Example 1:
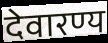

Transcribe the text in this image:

देवारण्य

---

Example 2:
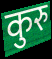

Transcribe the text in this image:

कुरु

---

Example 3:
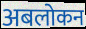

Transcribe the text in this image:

अबलोकन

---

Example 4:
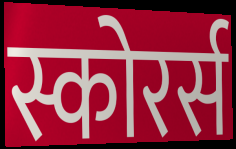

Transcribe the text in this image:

स्कोरर्स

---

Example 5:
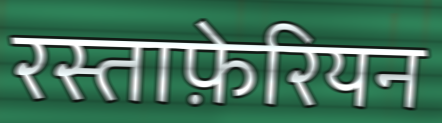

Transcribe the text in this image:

रस्ताफ़ेरियन